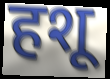
हशू